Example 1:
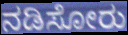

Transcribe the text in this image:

ನಡಿಸೋರು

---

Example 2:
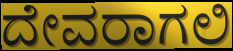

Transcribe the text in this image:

ದೇವರಾಗಲಿ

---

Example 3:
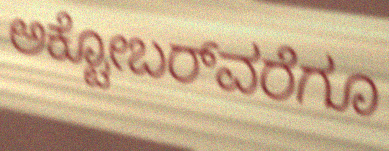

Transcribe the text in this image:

ಅಕ್ಟೋಬರ್‌ವರೆಗೂ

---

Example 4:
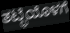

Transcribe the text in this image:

ತಟ್ಟೆಯೊಳಗೆ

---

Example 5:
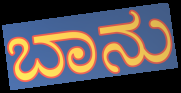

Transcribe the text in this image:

ಬಾನು